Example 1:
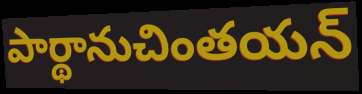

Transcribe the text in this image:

పార్థానుచింతయన్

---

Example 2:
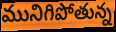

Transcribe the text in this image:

మునిగిపోతున్న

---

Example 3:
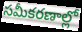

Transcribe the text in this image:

సమీకరణాల్లో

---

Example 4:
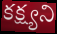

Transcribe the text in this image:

కక్ష్యని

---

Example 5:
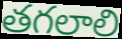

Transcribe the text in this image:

తగలాలి